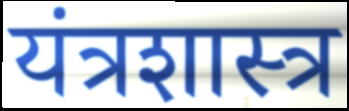
यंत्रशास्त्र